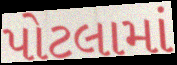
પોટલામાં